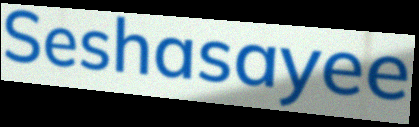
Seshasayee